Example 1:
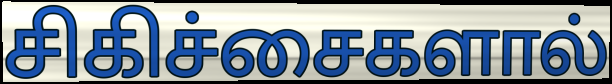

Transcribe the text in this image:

சிகிச்சைகளால்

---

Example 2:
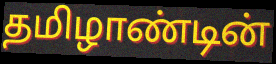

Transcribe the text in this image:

தமிழாண்டின்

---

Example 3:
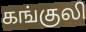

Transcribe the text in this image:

கங்குலி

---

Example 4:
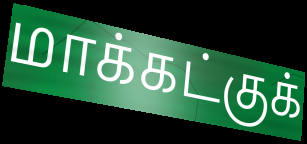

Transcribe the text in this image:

மாக்கட்குக்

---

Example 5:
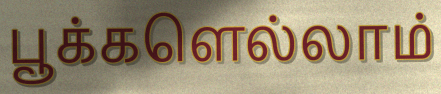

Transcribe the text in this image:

பூக்களெல்லாம்